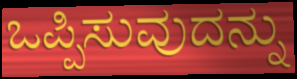
ಒಪ್ಪಿಸುವುದನ್ನು